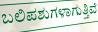
ಬಲಿಪಶುಗಳಾಗುತ್ತಿವೆ